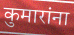
कुमारांना